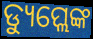
ଡ୍ୟୁପ୍ଲେଙ୍କ